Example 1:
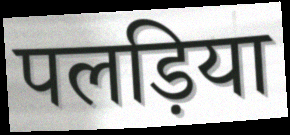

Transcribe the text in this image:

पलड़िया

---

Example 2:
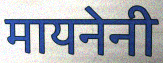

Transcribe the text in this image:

मायनेनी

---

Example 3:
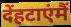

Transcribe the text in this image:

देंहटाएंमैं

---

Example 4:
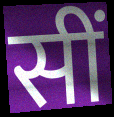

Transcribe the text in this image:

सीं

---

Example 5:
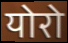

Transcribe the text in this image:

योरो